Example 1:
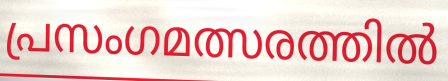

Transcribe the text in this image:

പ്രസംഗമത്സരത്തിൽ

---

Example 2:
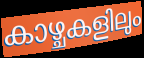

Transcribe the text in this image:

കാഴ്ചകളിലും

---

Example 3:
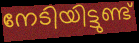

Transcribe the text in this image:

നേടിയിട്ടുണ്ട്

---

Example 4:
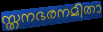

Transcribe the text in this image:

സ്തനഭരനമിതാ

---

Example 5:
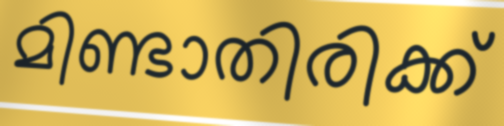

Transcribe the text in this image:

മിണ്ടാതിരിക്ക്